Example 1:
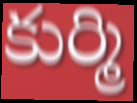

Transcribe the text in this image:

కుర్మి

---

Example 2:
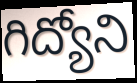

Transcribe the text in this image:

గిద్యోని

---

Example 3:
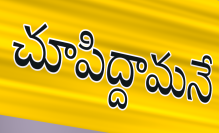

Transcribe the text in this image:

చూపిద్దామనే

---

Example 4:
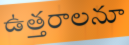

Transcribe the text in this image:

ఉత్తరాలనూ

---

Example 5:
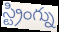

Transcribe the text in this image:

స్ట్రింగ్ను